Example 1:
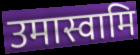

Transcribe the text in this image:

उमास्वामि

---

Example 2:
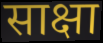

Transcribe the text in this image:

साक्षा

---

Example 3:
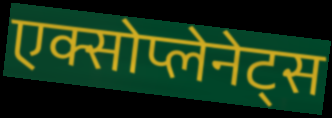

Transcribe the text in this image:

एक्सोप्लेनेट्स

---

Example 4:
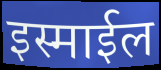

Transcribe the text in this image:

इस्माईल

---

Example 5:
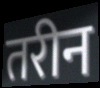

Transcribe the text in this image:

तरीन